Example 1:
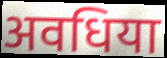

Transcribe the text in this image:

अवधिया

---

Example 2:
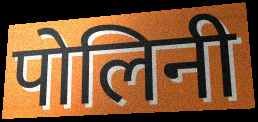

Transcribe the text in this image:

पोलिनी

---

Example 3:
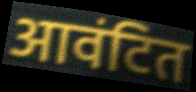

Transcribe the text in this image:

आवंटित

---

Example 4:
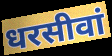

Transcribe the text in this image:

धरसीवां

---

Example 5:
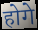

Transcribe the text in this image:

होगे